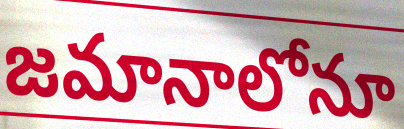
జమానాలోనూ